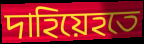
দাহিয়েহতে